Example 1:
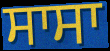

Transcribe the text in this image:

ਸਾਸਾ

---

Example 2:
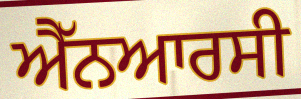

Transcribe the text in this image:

ਐੱਨਆਰਸੀ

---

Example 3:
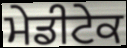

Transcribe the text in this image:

ਮੇਡੀਟੇਕ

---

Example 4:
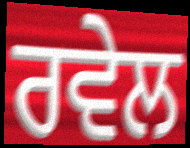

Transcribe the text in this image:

ਰਵੇਲ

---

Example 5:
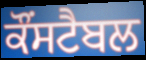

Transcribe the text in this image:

ਕੌਂਸਟੈਬਲ